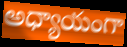
అధ్యాయంగా